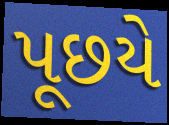
પૂછયે